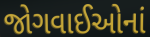
જોગવાઈઓનાં